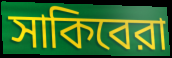
সাকিবেরা